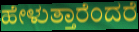
ಹೇಳುತ್ತಾರೆಂದರೆ